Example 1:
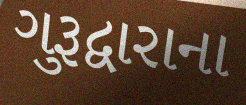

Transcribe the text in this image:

ગુરૂદ્વારાના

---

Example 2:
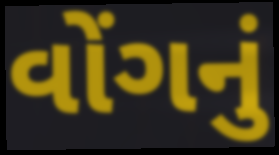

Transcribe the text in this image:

વોંગનું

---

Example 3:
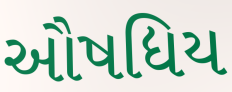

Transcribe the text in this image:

ઔષદ્યિય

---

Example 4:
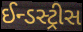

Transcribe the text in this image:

ઈન્ડસ્ટ્રીસ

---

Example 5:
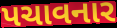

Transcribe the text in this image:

પચાવનાર